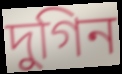
দুগিন